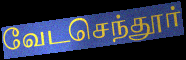
வேடசெந்தூர்